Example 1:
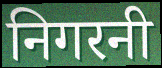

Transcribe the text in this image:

निगरनी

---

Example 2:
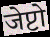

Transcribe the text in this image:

जेप्टो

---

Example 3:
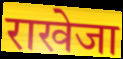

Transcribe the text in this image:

राखेजा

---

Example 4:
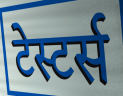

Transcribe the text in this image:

टेस्टर्स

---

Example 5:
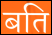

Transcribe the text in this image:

बति